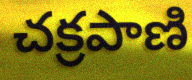
చక్రపాణి